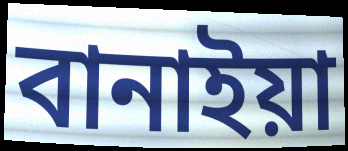
বানাইয়া